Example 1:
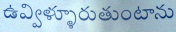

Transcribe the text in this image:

ఉవ్విళ్ళూరుతుంటాను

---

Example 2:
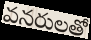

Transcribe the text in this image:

వనరులతో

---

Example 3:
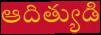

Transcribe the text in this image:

ఆదిత్యుడి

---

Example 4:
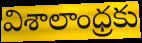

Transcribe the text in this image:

విశాలాంధ్రకు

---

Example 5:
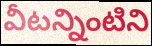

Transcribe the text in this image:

వీటన్నింటిని